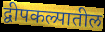
द्वीपकल्पातील